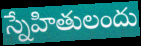
స్నేహితులందు